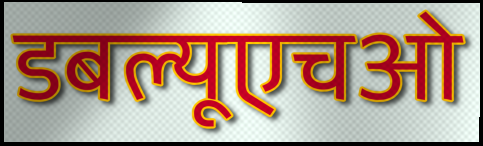
डबल्यूएचओ